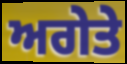
ਅਗੇਤੇ